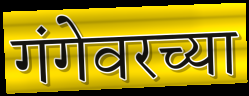
गंगेवरच्या